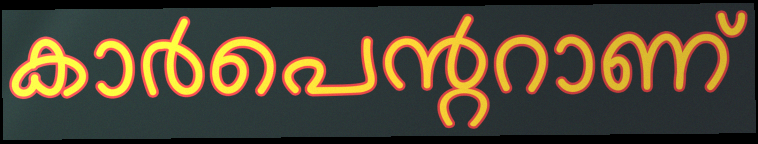
കാർപെന്ററാണ്